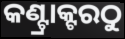
କଣ୍ଟ୍ରାକ୍ଟରଠୁ